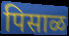
पिसाळ